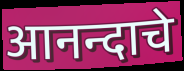
आनन्दाचे